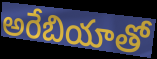
అరేబియాతో